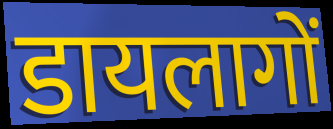
डायलागों